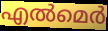
എൽമെർ